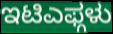
ಇಟಿಎಫ್ಗಳು